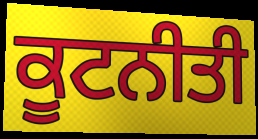
ਕੂਟਨੀਤੀ